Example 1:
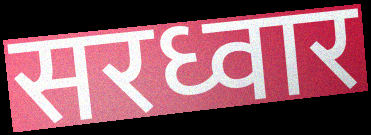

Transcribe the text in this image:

सरध्वार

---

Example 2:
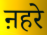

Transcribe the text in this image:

ऩहरे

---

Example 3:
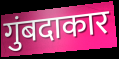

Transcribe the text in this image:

गुंबदाकार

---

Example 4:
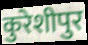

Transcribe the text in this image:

कुरेशीपुर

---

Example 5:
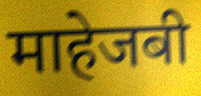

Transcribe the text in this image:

माहेजबी